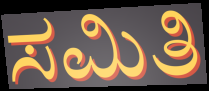
ಸಮಿತಿ